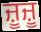
ਜ਼ੂਜ਼ੂ